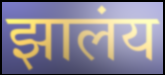
झालंय